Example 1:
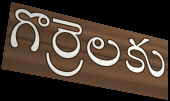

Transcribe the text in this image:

గొర్రెలకు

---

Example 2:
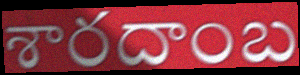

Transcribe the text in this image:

శారదాంబ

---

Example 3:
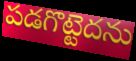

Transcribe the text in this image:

పడగొట్టెదను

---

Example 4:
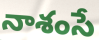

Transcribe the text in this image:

నాశంసే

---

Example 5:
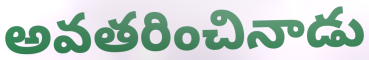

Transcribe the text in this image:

అవతరించినాడు